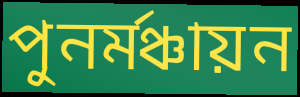
পুনর্মঞ্চায়ন